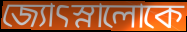
জ্যোৎস্নালোকে